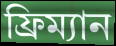
ফ্রিম্যান